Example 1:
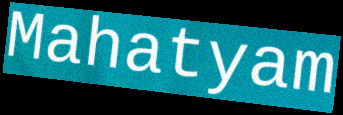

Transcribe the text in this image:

Mahatyam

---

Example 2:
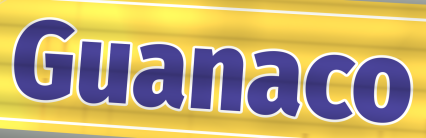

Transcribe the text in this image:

Guanaco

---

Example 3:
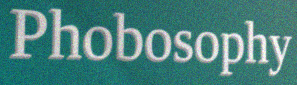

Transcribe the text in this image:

Phobosophy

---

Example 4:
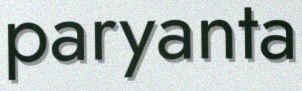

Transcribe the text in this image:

paryanta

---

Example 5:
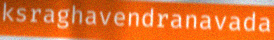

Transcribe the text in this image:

ksraghavendranavada